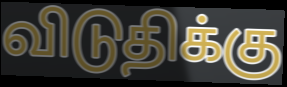
விடுதிக்கு